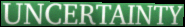
UNCERTAINTY